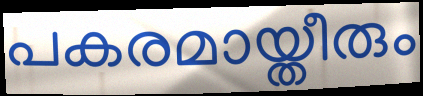
പകരമായ്തീരും